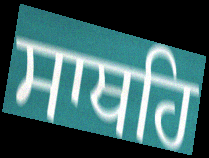
ਸਾਥਹਿ